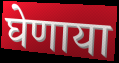
घेणाया